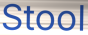
Stool